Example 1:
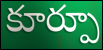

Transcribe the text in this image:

కూర్పూ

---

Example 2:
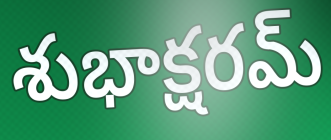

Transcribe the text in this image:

శుభాక్షరమ్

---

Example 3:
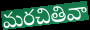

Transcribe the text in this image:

మరచితివా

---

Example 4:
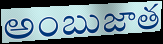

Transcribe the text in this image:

అంబుజాత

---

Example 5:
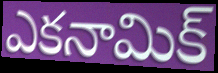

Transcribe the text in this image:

ఎకనామిక్